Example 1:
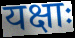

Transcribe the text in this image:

यक्षाः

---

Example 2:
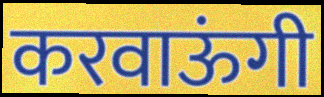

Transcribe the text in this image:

करवाऊंगी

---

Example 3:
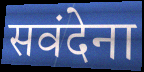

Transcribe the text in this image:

सवंदेना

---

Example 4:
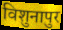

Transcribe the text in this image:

विशुनापुर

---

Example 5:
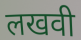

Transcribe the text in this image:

लखवी